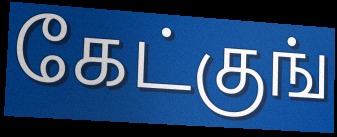
கேட்குங்